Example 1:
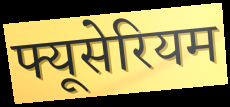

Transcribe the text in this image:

फ्यूसेरियम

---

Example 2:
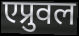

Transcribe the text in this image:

एप्रुवल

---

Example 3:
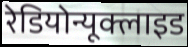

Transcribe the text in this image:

रेडियोन्यूक्लाइड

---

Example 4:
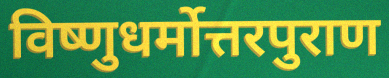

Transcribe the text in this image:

विष्णुधर्मोत्तरपुराण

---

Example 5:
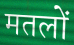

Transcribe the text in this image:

मतलों